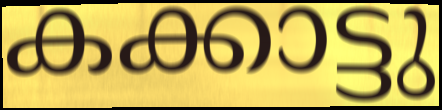
കക്കാട്ടു